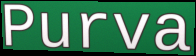
Purva